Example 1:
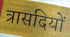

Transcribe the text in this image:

त्रासदियों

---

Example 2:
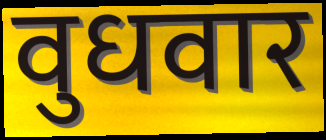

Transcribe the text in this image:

वुधवार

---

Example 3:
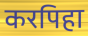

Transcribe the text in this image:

करपिहा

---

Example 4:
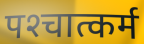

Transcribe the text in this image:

पश्चात्कर्म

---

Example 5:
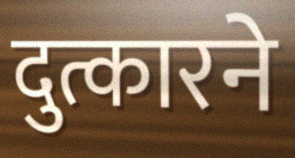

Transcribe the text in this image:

दुत्कारने